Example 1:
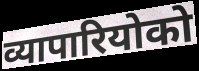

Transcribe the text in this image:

व्यापारियोको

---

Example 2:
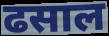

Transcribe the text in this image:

ढसाल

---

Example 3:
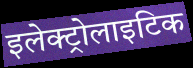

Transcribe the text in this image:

इलेक्ट्रोलाइटिक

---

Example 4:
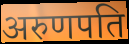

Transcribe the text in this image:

अरुणपति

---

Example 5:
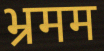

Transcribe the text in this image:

भ्रमम